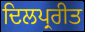
ਦਿਲਪ੍ਰਰੀਤ